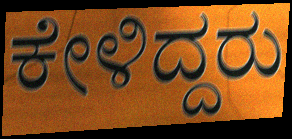
ಕೇಳಿದ್ದರು